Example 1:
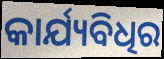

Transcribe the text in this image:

କାର୍ଯ୍ୟବିଧିର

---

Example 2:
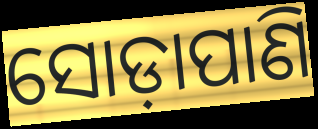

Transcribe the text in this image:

ସୋଡ଼ାପାଣି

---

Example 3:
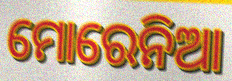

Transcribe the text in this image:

ମୋରେନିଆ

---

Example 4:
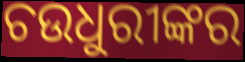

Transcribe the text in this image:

ଚଉଧୁରୀଙ୍କର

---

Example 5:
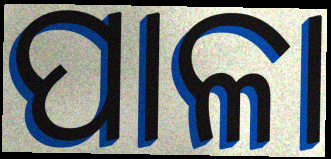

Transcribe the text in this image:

ପାଳା